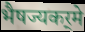
भैषज्यकर्मे